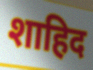
शाहिद